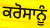
ਕਰੋਸਾਨੂੰ